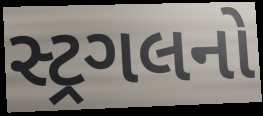
સ્ટ્રગલનો